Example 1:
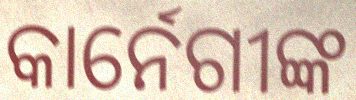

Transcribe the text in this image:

କାର୍ନେଗୀଙ୍କ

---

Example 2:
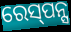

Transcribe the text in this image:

ରେସ୍‌ପନ୍ସ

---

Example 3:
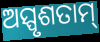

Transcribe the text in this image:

ଅସ୍ପୃଶତାମ୍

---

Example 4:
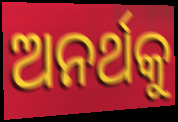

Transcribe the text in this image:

ଅନର୍ଥକୁ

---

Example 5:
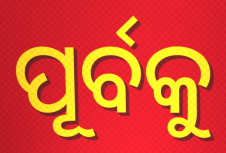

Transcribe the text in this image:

ପୂର୍ବକୁ